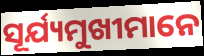
ସୂର୍ଯ୍ୟମୁଖୀମାନେ